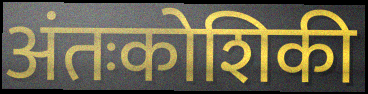
अंतःकोशिकी